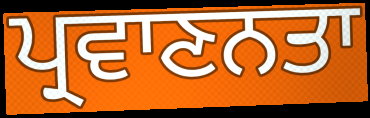
ਪ੍ਰਵਾਣਨਤਾ